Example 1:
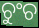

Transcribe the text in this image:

ଚୁଂଚ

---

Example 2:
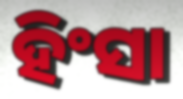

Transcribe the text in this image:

ହିଂସା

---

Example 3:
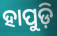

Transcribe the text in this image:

ହାପୁଡ଼ି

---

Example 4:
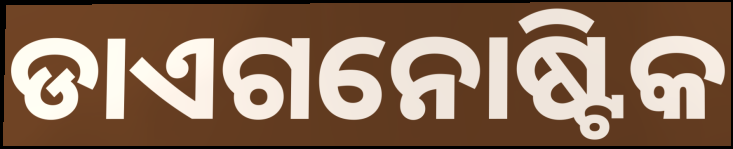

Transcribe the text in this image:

ଡାଏଗନୋଷ୍ଟିକ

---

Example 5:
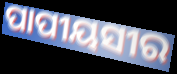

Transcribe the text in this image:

ପାପୀୟସୀର